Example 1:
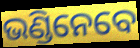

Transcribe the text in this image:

ଭଣ୍ଡିନେବେ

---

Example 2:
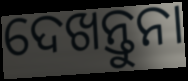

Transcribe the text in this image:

ଦେଖନ୍ତୁନା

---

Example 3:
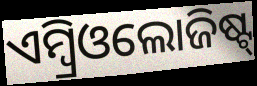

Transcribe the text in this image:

ଏମ୍ବ୍ରିଓଲୋଜିଷ୍ଟ୍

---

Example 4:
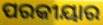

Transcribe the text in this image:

ପରକୀୟାର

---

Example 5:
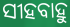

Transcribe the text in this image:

ସୀହବାହୁ